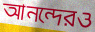
আনন্দেরও